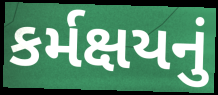
કર્મક્ષયનું